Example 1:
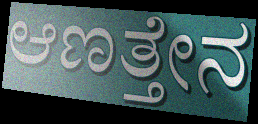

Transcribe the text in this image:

ಆಣತ್ತೇನ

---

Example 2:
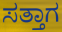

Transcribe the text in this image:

ಸತ್ತಾಗ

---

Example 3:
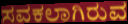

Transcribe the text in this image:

ಸವಕಲಾಗಿರುವ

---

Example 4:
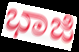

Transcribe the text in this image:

ಭಾಜಿ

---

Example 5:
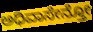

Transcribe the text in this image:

ಅಧಿವಾಸೇನ್ತೋ